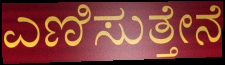
ಎಣಿಸುತ್ತೇನೆ